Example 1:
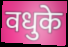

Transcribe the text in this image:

वधुके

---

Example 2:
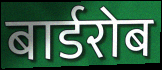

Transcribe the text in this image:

बार्डरोब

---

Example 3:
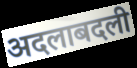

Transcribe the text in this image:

अदलाबदली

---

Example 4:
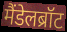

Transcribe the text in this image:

मैंडेलब्रॉट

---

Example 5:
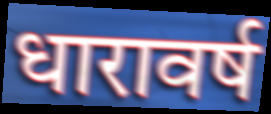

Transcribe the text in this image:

धारावर्ष